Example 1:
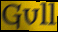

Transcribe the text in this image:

Gull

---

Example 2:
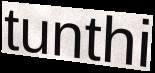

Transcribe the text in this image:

tunthi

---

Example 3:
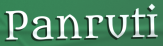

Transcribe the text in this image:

Panruti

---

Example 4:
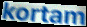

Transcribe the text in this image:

kortam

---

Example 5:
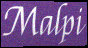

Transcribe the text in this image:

Malpi